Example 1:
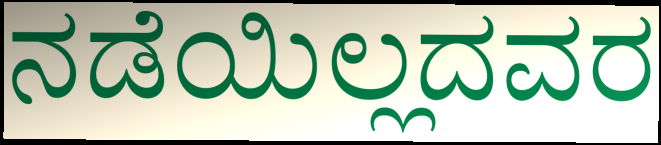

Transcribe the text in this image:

ನಡೆಯಿಲ್ಲದವರ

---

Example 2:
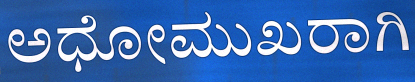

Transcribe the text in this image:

ಅಧೋಮುಖರಾಗಿ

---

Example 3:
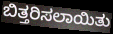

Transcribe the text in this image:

ಬಿತ್ತರಿಸಲಾಯಿತು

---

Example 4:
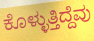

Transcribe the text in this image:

ಕೊಳ್ಳುತ್ತಿದ್ದೆವು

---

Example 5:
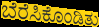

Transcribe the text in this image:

ಬೆರೆಸಿಕೊಂಡಿತು